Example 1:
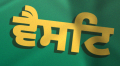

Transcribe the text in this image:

ਵੈਸਟਿ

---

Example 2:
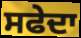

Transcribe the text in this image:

ਸਫੇਦਾ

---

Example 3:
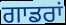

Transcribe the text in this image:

ਗਾਡਰਾਂ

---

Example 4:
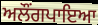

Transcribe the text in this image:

ਅਲੌਂਗਪਾਇਆ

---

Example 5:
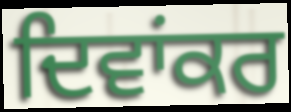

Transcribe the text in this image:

ਦਿਵਾਂਕਰ